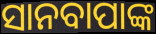
ସାନବାପାଙ୍କ